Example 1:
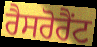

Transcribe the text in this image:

ਰੈਸਰੋਰੈਂਟ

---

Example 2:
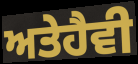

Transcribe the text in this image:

ਅਤੇਹੈਵੀ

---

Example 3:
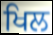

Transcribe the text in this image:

ਖਿਲ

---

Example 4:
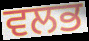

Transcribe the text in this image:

ਵਲਭ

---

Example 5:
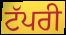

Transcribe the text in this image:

ਟੱਪਰੀ